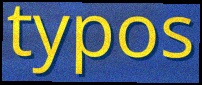
typos